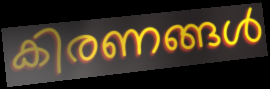
കിരണങ്ങൾ